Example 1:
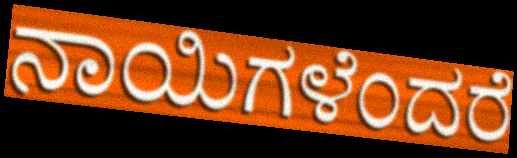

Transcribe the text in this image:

ನಾಯಿಗಳೆಂದರೆ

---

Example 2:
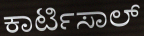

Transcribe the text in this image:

ಕಾರ್ಟಿಸಾಲ್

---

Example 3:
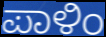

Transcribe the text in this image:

ಪಾಳಿಂ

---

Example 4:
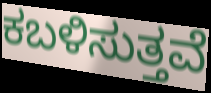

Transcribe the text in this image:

ಕಬಳಿಸುತ್ತವೆ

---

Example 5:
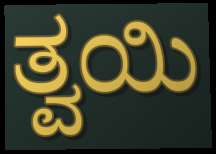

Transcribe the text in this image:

ತ್ವಯಿ